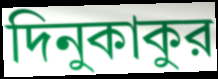
দিনুকাকুর